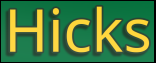
Hicks